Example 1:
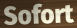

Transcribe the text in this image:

Sofort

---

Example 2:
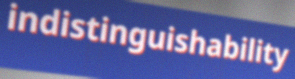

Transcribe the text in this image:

indistinguishability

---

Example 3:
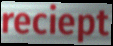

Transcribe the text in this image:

reciept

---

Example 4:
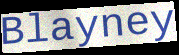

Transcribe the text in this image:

Blayney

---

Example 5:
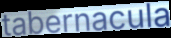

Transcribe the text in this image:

tabernacula